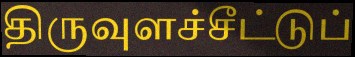
திருவுளச்சீட்டுப்